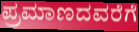
ಪ್ರಮಾಣದವರೆಗೆ